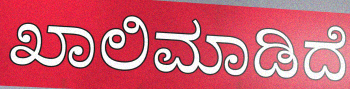
ಖಾಲಿಮಾಡಿದೆ